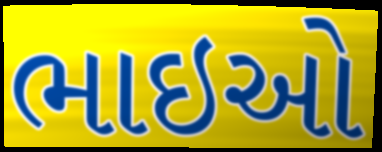
ભાઇઓ